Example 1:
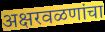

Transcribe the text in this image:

अक्षरवळणांचा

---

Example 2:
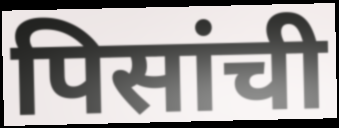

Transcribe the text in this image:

पिसांची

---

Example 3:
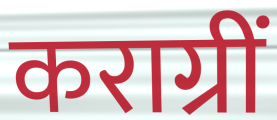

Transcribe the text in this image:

कराग्रीं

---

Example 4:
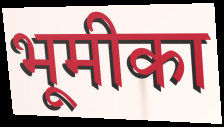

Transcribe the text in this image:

भूमीका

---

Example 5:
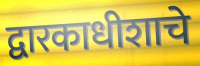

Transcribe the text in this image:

द्वारकाधीशाचे